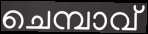
ചെമ്പാവ്